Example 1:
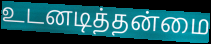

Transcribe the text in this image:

உடனடித்தன்மை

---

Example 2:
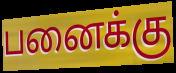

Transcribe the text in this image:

பனைக்கு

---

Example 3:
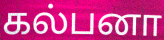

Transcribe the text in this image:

கல்பனா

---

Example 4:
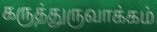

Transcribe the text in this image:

கருத்துருவாக்கம்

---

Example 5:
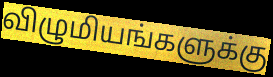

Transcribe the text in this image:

விழுமியங்களுக்கு